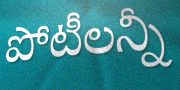
పోటీలన్నీ